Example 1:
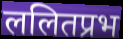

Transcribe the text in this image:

ललितप्रभ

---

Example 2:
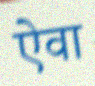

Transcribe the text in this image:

ऐवा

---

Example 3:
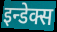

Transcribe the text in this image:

इन्डेक्स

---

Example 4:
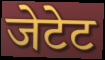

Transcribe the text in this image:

जेटेट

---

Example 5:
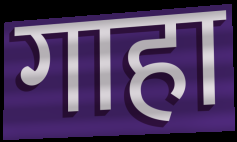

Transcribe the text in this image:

गाहा